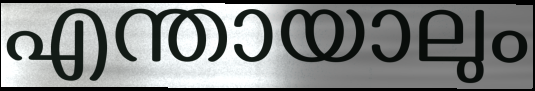
എന്തായാലും